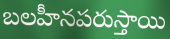
బలహీనపరుస్తాయి